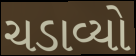
ચડાવ્યો